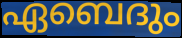
ഏബെദും